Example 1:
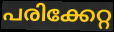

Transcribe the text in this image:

പരിക്കേറ്റ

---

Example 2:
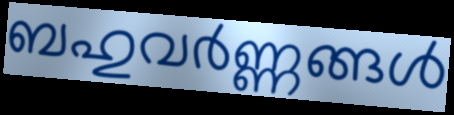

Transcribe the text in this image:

ബഹുവർണ്ണങ്ങൾ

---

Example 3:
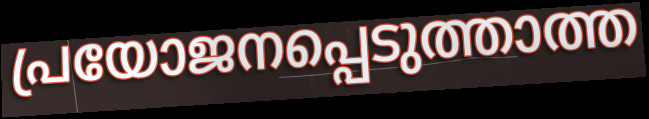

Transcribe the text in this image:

പ്രയോജനപ്പെടുത്താത്ത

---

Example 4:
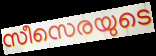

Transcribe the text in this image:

സീസെരയുടെ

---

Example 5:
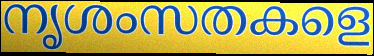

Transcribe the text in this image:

നൃശംസതകളെ